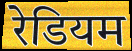
रेडियम